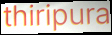
thiripura